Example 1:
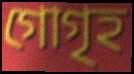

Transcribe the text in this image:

গোগৃহ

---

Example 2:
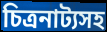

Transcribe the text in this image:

চিত্রনাট্যসহ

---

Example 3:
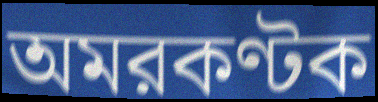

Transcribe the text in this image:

অমরকণ্টক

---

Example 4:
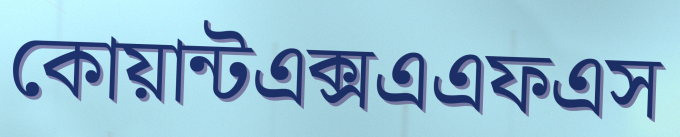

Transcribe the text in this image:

কোয়ান্টএক্সএএফএস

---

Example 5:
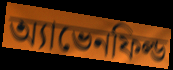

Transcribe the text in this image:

অ্যাভেনফিল্ড